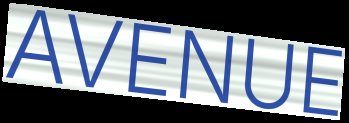
AVENUE